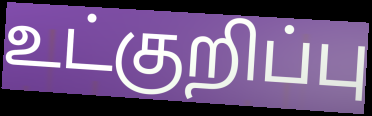
உட்குறிப்பு